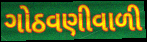
ગોઠવણીવાળી